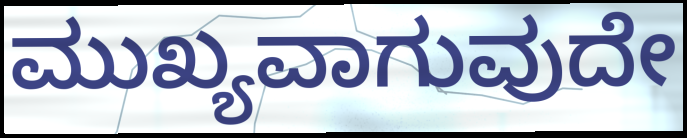
ಮುಖ್ಯವಾಗುವುದೇ